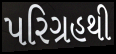
પરિગ્રહથી